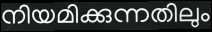
നിയമിക്കുന്നതിലും